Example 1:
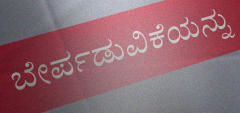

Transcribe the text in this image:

ಬೇರ್ಪಡುವಿಕೆಯನ್ನು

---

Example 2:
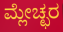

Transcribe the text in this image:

ಮ್ಲೇಚ್ಛರ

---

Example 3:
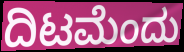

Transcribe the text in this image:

ದಿಟಮೆಂದು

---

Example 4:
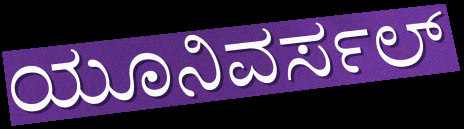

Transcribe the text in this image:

ಯೂನಿವರ್ಸಲ್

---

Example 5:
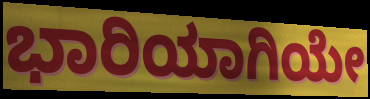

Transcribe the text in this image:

ಭಾರಿಯಾಗಿಯೇ